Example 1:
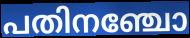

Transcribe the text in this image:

പതിനഞ്ചോ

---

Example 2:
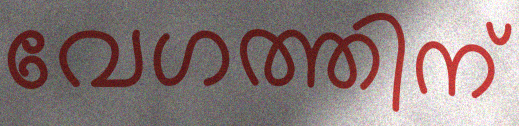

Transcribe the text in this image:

വേഗത്തിന്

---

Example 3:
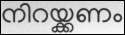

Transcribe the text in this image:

നിറയ്ക്കണം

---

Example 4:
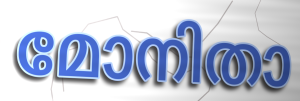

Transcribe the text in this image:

മോനിതാ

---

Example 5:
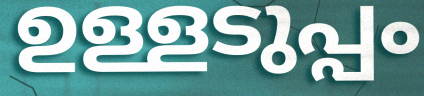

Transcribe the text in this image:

ഉള്ളടുപ്പം